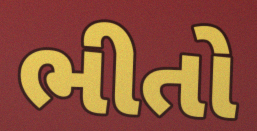
ભીતો